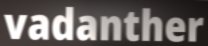
vadanther